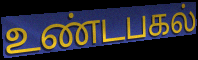
உண்டபகல்